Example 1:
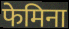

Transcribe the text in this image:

फेमिना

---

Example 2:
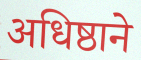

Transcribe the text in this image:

अधिष्ठाने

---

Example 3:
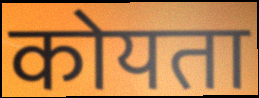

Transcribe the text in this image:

कोयता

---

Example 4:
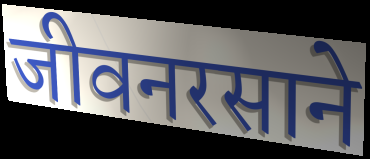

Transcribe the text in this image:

जीवनरसाने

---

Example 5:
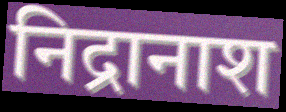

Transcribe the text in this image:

निद्रानाश